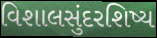
વિશાલસુંદરશિષ્ય